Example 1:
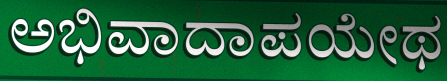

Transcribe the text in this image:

ಅಭಿವಾದಾಪಯೇಥ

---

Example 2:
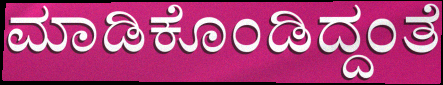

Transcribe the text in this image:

ಮಾಡಿಕೊಂಡಿದ್ದಂತೆ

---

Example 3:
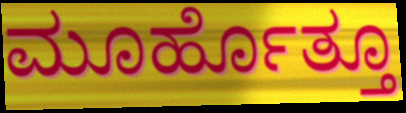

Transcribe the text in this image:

ಮೂರ್ಹೊತ್ತೂ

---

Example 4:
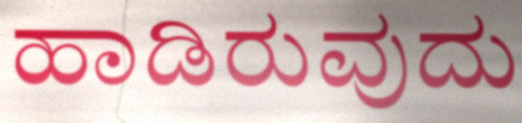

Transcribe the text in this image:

ಹಾಡಿರುವುದು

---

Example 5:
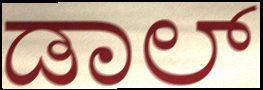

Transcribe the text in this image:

ಡಾಲ್